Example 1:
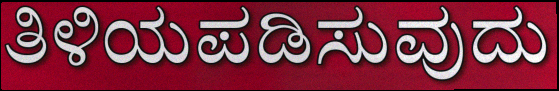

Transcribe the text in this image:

ತಿಳಿಯಪಡಿಸುವುದು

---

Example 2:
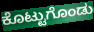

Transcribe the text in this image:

ಕೊಟ್ಟುಗೊಂಡು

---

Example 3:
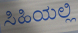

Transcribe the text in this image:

ಸಿಹಿಯಲ್ಲಿ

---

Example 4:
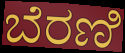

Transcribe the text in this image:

ಬೆರಣಿ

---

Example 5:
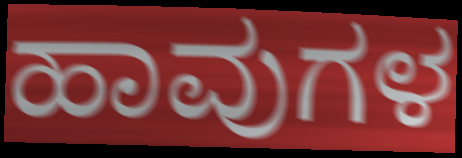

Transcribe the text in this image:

ಹಾವುಗಳ